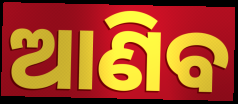
ଆଣିବ